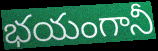
భయంగానీ